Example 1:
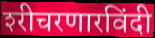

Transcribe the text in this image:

श्रीचरणारविंदी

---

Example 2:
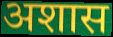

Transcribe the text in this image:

अशास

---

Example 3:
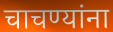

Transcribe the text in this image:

चाचण्यांना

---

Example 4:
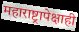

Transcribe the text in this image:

महाराष्ट्रापेक्षाही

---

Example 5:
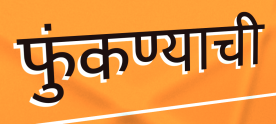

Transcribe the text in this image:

फुंकण्याची